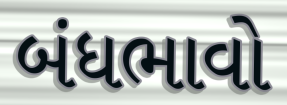
બંધભાવો